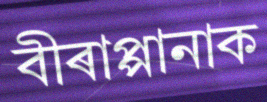
বীৰাপ্পানাক